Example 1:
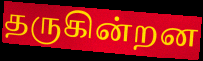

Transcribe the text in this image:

தருகின்றன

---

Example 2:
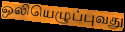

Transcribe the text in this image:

ஒலியெழுப்புவது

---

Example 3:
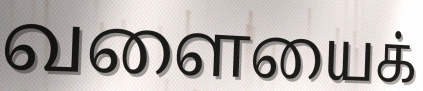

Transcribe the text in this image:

வளையைக்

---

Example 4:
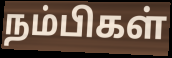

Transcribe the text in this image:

நம்பிகள்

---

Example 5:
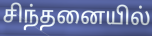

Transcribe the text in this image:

சிந்தனையில்